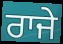
ਰਾਜੇ